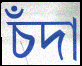
চঁদা